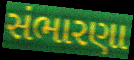
સંભારણા